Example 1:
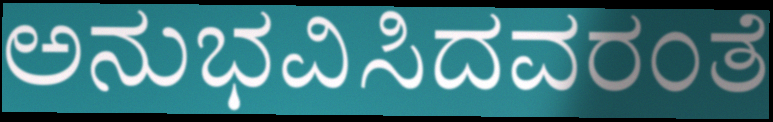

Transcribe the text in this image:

ಅನುಭವಿಸಿದವರಂತೆ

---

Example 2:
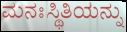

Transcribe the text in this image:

ಮನಃಸ್ಥಿತಿಯನ್ನು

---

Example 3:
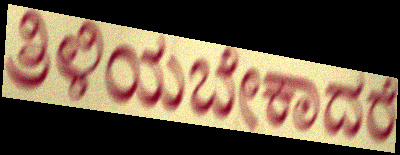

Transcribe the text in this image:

ತಿಳಿಯಬೇಕಾದರೆ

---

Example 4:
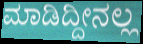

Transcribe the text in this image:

ಮಾಡಿದ್ದೀನಲ್ಲ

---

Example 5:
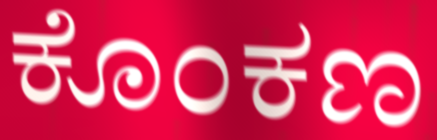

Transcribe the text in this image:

ಕೊಂಕಣ